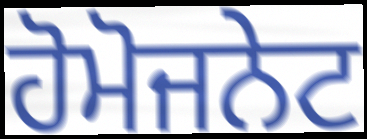
ਹੋਮੋਜਨੇਟ